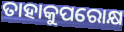
ତାହାକୁପରୋକ୍ଷ